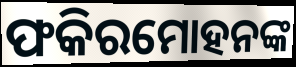
ଫକିରମୋହନଙ୍କ